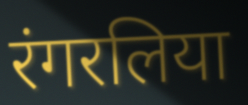
रंगरलिया